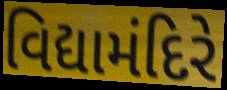
વિદ્યામંદિરે